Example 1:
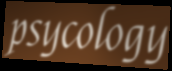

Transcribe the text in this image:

psycology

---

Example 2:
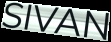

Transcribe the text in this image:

SIVAN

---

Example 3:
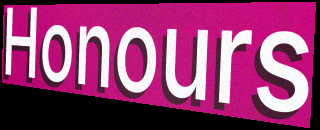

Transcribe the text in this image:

Honours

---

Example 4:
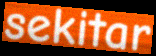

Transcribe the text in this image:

sekitar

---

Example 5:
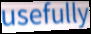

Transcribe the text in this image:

usefully